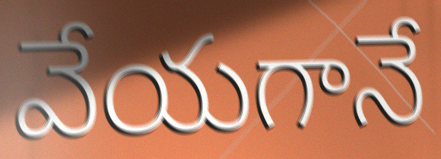
వేయగానే